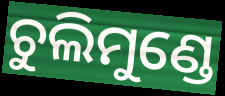
ଚୁଲିମୁଣ୍ଡେ